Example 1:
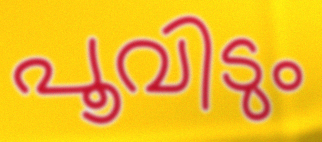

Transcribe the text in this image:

പൂവിടും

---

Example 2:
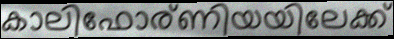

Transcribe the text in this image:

കാലിഫോര്ണിയയിലേക്ക്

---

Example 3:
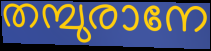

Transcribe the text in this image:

തമ്പുരാനേ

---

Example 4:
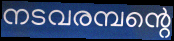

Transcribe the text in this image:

നടവരമ്പന്റെ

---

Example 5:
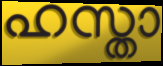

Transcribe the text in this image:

ഹസ്താ